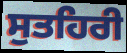
ਸੁਤਹਿਰੀ